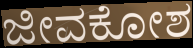
ಜೀವಕೋಶ